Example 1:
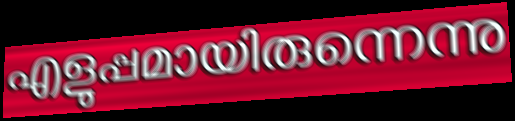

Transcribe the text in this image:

എളുപ്പമായിരുന്നെന്നു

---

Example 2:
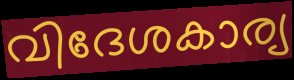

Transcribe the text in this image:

വിദേശകാര്യ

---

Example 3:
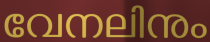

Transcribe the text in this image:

വേനലിനും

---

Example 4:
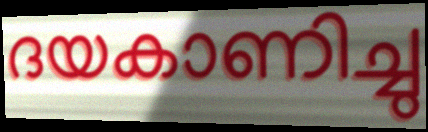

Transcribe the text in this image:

ദയകാണിച്ചു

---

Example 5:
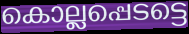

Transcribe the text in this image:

കൊല്ലപ്പെടട്ടെ